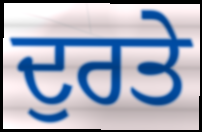
ਦੁਰਤੇ